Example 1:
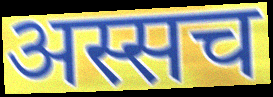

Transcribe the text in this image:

अस्सच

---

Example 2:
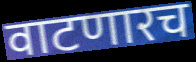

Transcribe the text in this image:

वाटणारच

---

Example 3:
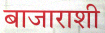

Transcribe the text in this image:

बाजाराशी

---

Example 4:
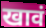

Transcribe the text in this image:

खावं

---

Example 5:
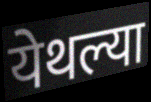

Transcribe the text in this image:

येथल्या